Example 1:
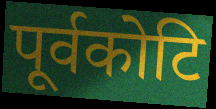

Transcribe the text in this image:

पूर्वकोटि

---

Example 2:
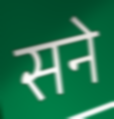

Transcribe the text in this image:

सने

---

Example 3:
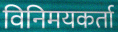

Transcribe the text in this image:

विनिमयकर्ता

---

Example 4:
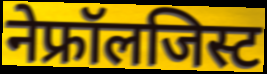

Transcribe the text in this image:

नेफ्रॉलजिस्ट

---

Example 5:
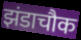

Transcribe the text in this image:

झंडाचौक